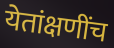
येतांक्षणींच